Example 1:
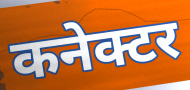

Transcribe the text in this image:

कनेक्टर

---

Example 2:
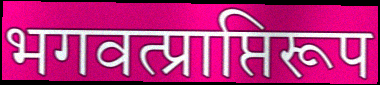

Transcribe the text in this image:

भगवत्प्राप्तिरूप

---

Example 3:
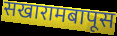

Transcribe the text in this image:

सखारामबापूस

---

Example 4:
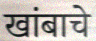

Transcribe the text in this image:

खांबाचे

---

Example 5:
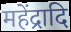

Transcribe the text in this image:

महेंद्रादि